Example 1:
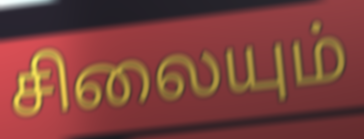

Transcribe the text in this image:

சிலையும்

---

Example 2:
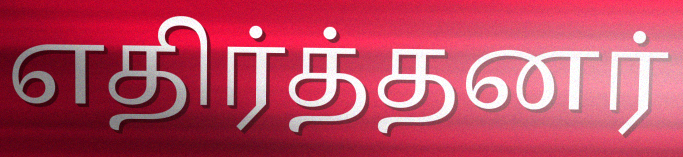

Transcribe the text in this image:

எதிர்த்தனர்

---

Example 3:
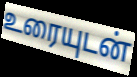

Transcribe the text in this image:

உரையுடன்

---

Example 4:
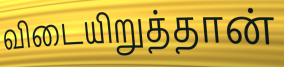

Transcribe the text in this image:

விடையிறுத்தான்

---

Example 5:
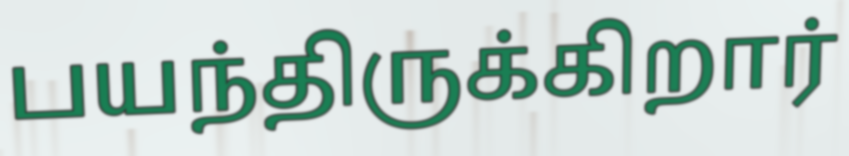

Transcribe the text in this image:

பயந்திருக்கிறார்